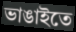
ভাঙাইতে